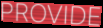
PROVIDE